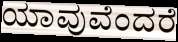
ಯಾವುವೆಂದರೆ